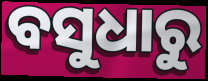
ବସୁଧାରୁ